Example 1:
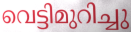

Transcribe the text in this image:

വെട്ടിമുറിച്ചു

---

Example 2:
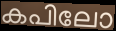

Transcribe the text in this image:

കപിലോ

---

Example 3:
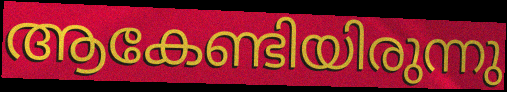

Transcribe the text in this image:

ആകേണ്ടിയിരുന്നു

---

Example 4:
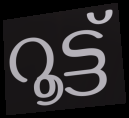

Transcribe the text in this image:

റൂട്ട്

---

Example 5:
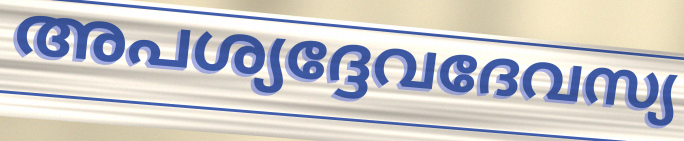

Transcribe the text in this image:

അപശ്യദ്ദേവദേവസ്യ